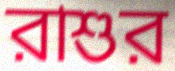
রাশুর